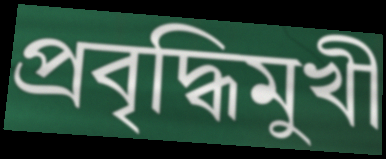
প্রবৃদ্ধিমুখী